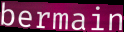
bermain